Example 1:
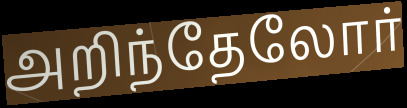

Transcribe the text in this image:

அறிந்தேலோர்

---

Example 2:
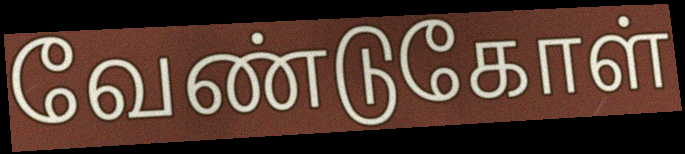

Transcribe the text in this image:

வேண்டுகோள்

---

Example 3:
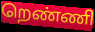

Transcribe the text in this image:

றெண்ணி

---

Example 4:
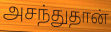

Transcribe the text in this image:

அசந்துதான்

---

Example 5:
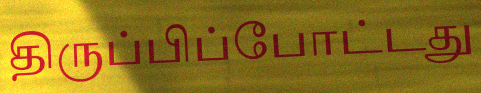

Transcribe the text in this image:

திருப்பிப்போட்டது